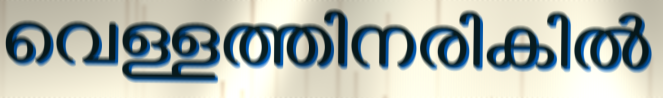
വെള്ളത്തിനരികിൽ